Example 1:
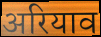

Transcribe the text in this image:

अरियाव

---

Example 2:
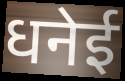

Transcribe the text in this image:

धनेई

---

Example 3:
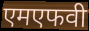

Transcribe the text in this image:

एमएफवी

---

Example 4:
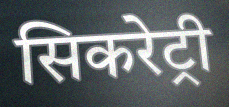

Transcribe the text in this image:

सिकरेट्री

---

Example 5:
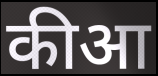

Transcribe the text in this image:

कीआ